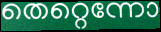
തെറ്റെന്നോ